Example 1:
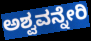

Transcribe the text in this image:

ಅಶ್ವವನ್ನೇರಿ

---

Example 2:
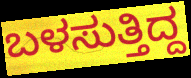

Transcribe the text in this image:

ಬಳಸುತ್ತಿದ್ದ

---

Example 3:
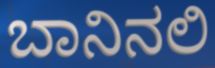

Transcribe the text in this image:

ಬಾನಿನಲಿ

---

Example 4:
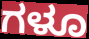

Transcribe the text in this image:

ಗಳೂ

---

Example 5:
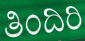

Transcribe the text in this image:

ತಿಂದಿರಿ